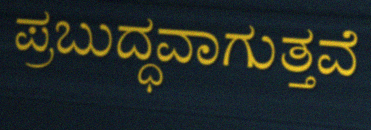
ಪ್ರಬುದ್ಧವಾಗುತ್ತವೆ